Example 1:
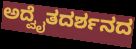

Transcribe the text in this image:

ಅದ್ವೈತದರ್ಶನದ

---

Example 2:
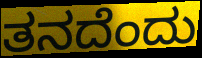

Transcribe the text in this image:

ತನದೆಂದು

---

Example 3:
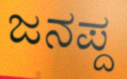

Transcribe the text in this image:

ಜನಪ್ದ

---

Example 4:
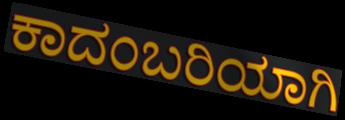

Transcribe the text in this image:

ಕಾದಂಬರಿಯಾಗಿ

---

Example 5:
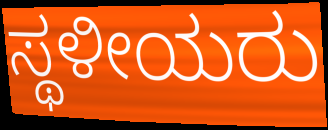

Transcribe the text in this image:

ಸ್ಥಳೀಯರು